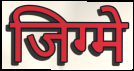
जिग्मे